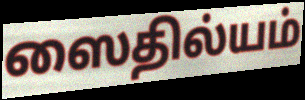
ஸைதில்யம்